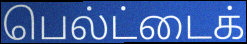
பெல்ட்டைக்